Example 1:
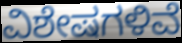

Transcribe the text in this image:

ವಿಶೇಷಗಳಿವೆ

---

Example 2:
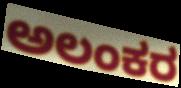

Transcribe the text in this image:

ಅಲಂಕರ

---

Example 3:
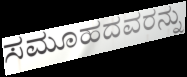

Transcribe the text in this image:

ಸಮೂಹದವರನ್ನು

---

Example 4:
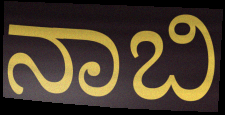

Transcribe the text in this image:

ನಾಬಿ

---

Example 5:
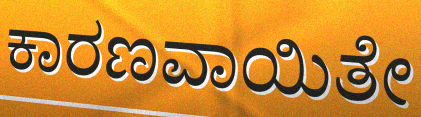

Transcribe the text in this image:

ಕಾರಣವಾಯಿತೇ